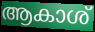
ആകാശ്